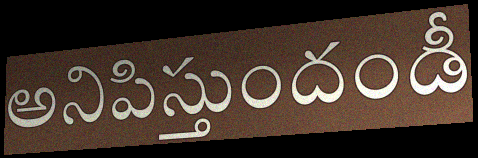
అనిపిస్తుందండీ